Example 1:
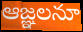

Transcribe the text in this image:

ఆజ్ఞలనూ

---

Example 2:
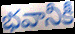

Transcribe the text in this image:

భవానీకీ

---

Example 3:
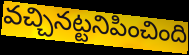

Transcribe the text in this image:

వచ్చినట్టనిపించింది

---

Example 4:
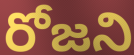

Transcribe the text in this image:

రోజని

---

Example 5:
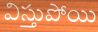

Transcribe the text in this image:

విస్తుపోయి